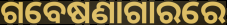
ଗବେଷଣାଗାରରେ